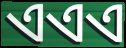
ଏଏଏ